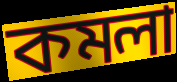
কমলা